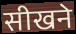
सीखने